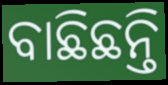
ବାଛିଛନ୍ତି